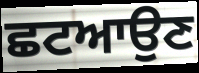
ਛਟਆਉਣ